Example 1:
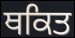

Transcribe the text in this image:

ਥਕਿਤ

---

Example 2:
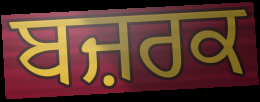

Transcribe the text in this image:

ਬਜ਼ਰਕ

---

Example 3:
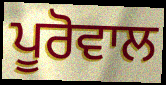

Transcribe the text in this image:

ਪੂਰੋਵਾਲ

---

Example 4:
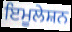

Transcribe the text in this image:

ਇਮੂਲੇਸ਼ਨ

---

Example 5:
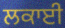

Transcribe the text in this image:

ਲਕਾਈ